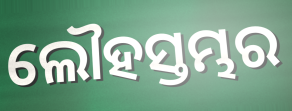
ଲୌହସ୍ତମ୍ଭର